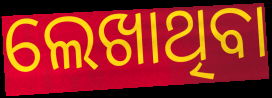
ଲେଖାଥିବା